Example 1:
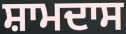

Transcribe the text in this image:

ਸ਼ਾਮਦਾਸ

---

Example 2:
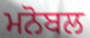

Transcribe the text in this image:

ਮਨੋਬਲ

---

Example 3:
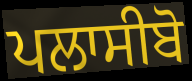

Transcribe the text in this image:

ਪਲਾਸੀਬੋ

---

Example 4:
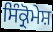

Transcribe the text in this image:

ਸਿੰਕ੍ਰੋਮੇਸ਼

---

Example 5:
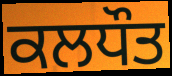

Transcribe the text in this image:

ਕਲਧੌਤ